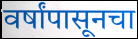
वर्षांपासूनचा